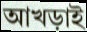
আখড়াই